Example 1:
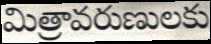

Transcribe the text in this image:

మిత్రావరుణులకు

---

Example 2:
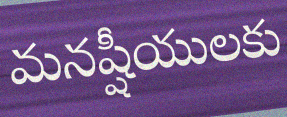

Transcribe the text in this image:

మనష్షీయులకు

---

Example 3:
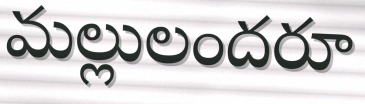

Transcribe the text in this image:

మల్లులందరూ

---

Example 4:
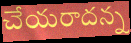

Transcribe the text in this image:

చేయరాదన్న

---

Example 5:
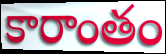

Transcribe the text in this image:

కారాంతం